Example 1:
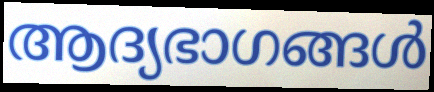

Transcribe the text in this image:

ആദ്യഭാഗങ്ങൾ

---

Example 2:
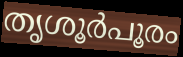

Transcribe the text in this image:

തൃശൂർപൂരം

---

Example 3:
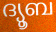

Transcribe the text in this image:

ദ്യൂബ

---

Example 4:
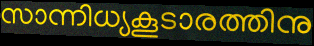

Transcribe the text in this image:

സാന്നിധ്യകൂടാരത്തിനു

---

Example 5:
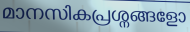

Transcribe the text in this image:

മാനസികപ്രശ്നങ്ങളോ